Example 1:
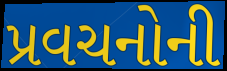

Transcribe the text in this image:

પ્રવચનોની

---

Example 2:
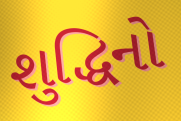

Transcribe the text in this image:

શુદ્ધિનો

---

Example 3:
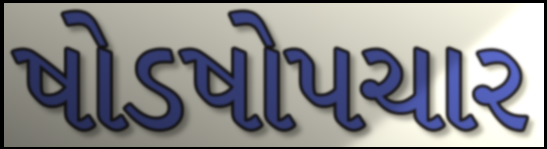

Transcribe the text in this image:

ષોડષોપચાર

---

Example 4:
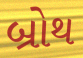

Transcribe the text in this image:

બ્રોથ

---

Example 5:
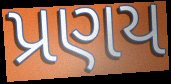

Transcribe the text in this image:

પ્રણય